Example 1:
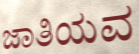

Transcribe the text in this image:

ಜಾತಿಯವ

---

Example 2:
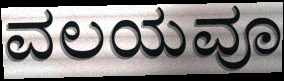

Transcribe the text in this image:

ವಲಯವೂ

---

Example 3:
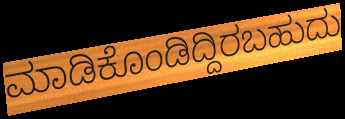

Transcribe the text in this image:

ಮಾಡಿಕೊಂಡಿದ್ದಿರಬಹುದು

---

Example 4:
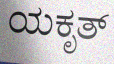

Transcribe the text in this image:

ಯಕೃತ್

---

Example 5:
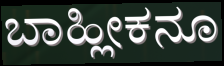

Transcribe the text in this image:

ಬಾಹ್ಲೀಕನೂ